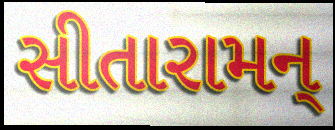
સીતારામન્